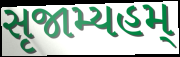
સૃજામ્યહમ્